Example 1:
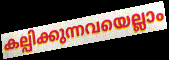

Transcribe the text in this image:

കല്പിക്കുന്നവയെല്ലാം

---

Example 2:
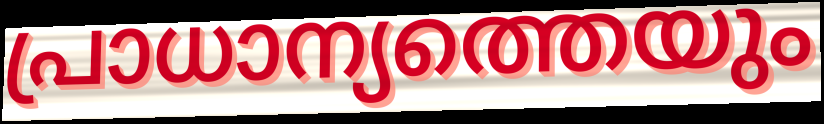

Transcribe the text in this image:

പ്രാധാന്യത്തെയും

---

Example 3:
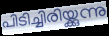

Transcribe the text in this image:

പിടിച്ചിരിയ്ക്കുന്നു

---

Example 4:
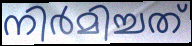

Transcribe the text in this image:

നിർമിച്ചത്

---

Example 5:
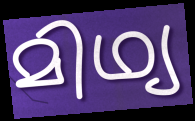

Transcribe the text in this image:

മിഥ്യ